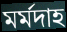
মর্মদাহ